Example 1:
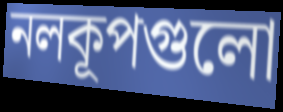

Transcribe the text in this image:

নলকূপগুলো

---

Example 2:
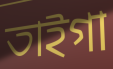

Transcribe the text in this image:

তাইগা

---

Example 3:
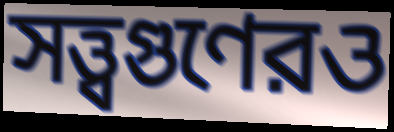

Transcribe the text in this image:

সত্ত্বগুণেরও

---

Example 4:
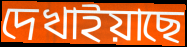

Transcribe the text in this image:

দেখাইয়াছে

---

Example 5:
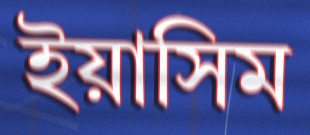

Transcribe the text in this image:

ইয়াসিম